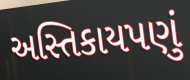
અસ્તિકાયપણું